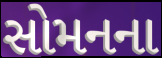
સોમનના